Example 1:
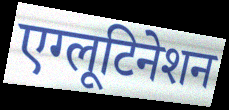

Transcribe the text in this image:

एग्लूटिनेशन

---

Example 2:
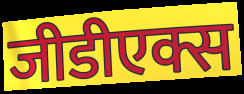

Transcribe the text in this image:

जीडीएक्स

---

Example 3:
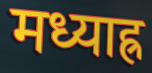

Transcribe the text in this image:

मध्याह्र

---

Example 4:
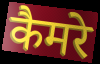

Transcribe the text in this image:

कैमरे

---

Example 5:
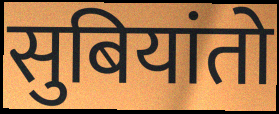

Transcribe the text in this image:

सुबियांतो